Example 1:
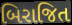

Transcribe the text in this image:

બિરાજિત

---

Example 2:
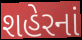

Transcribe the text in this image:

શહેરનાં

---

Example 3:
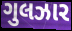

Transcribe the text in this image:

ગુલઝાર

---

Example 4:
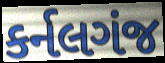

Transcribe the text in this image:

કર્નલગંજ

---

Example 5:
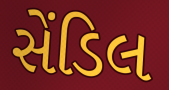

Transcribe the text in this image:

સેંડિલ